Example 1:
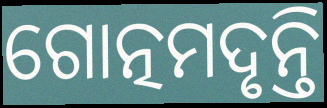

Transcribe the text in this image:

ଗୋତ୍ନମଦୃନ୍ତି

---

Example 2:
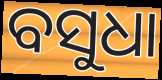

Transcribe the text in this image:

ବସୁଧା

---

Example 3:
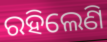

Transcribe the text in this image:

ରହିଲେଣି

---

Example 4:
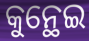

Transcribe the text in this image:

କୁନ୍ଥେଇ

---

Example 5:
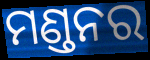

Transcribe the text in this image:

ମଣ୍ଡନର